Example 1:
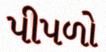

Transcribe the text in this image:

પીપળો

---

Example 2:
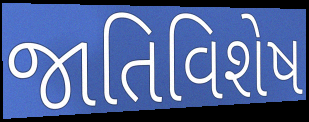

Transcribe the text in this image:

જાતિવિશેષ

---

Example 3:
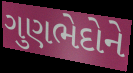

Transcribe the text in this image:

ગુણભેદોને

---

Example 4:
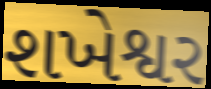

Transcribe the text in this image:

શખેશ્વર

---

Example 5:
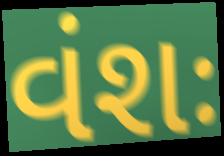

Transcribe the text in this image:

વંશઃ